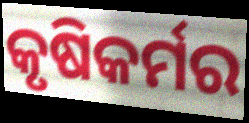
କୃଷିକର୍ମର